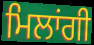
ਮਿਲਾਂਗੀ